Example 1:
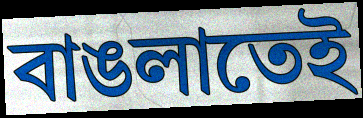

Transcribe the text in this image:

বাঙলাতেই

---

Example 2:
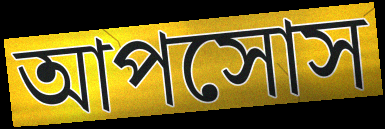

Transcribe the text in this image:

আপসোস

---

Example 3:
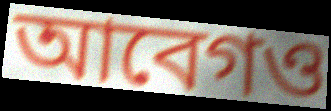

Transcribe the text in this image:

আবেগও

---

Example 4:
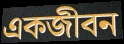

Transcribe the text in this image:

একজীবন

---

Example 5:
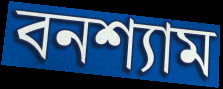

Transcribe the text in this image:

বনশ্যাম